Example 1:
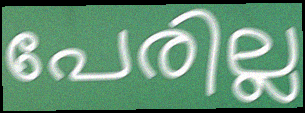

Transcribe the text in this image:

പേരില്ല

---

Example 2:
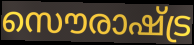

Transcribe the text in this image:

സൌരാഷ്ട്ര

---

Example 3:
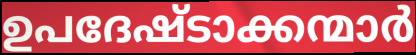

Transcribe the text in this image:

ഉപദേഷ്ടാക്കന്മാർ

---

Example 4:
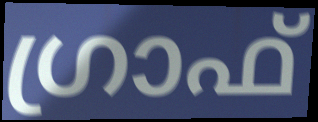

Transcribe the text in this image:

ഗ്രാഫ്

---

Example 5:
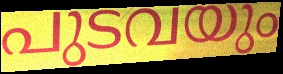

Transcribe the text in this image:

പുടവയും